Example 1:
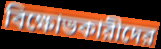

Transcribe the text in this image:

বিক্ষোভকারীদের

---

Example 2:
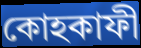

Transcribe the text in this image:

কোহকাফী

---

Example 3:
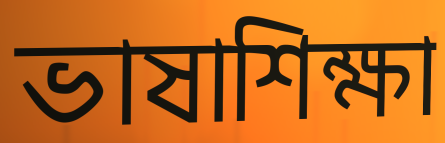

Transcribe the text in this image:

ভাষাশিক্ষা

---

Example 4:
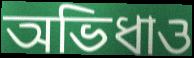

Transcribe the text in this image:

অভিধাও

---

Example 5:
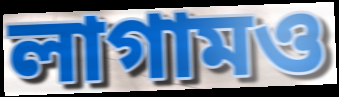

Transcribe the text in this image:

লাগামও